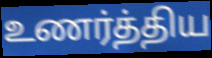
உணர்த்திய